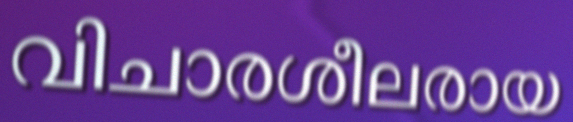
വിചാരശീലരായ